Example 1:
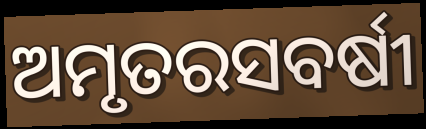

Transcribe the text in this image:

ଅମୃତରସବର୍ଷୀ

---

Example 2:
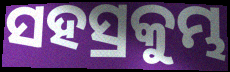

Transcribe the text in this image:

ସହସ୍ରକୁମ୍ଭ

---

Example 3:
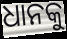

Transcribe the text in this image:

ଧାନକୁ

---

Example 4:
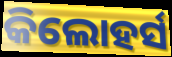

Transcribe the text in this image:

କିଲୋହର୍ସ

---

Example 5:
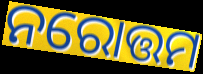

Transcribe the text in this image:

ନରୋତ୍ତମ